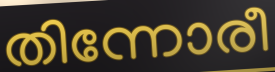
തിന്നോരീ